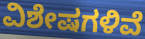
ವಿಶೇಷಗಳಿವೆ